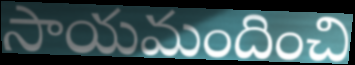
సాయమందించి